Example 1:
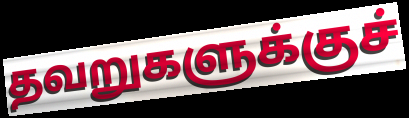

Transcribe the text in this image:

தவறுகளுக்குச்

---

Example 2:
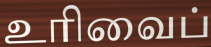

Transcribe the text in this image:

உரிவைப்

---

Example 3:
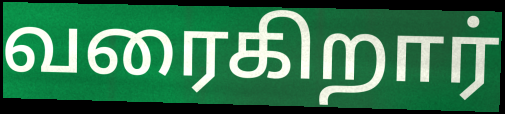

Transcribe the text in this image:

வரைகிறார்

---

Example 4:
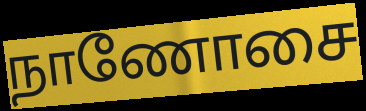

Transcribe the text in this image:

நாணோசை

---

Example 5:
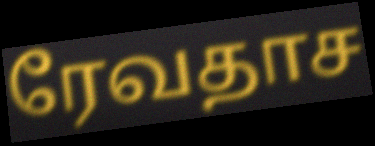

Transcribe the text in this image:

ரேவதாச